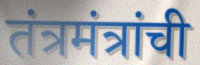
तंत्रमंत्रांची